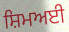
ਸ਼ਿਮਅਈ